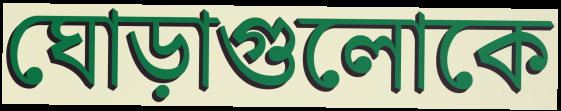
ঘোড়াগুলোকে